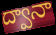
ద్వానా